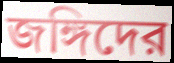
জঙ্গিদের